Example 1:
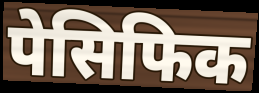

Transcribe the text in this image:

पेसिफिक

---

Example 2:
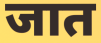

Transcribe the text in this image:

जात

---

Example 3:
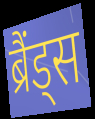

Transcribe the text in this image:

ब्रैंड्स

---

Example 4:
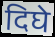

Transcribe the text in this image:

दिघे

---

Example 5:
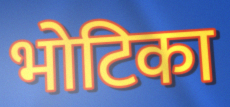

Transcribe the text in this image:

भोटिका